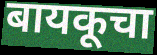
बायकूचा